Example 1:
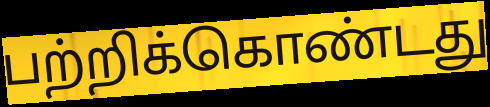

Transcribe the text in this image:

பற்றிக்கொண்டது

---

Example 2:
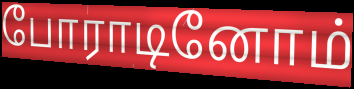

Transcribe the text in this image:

போராடினோம்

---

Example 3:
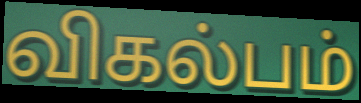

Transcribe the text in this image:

விகல்பம்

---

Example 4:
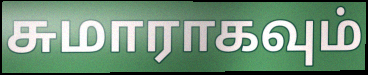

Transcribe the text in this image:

சுமாராகவும்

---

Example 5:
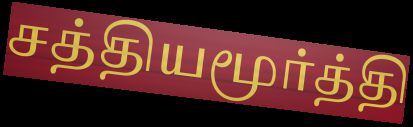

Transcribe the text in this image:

சத்தியமூர்த்தி